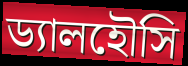
ড্যালহৌসি